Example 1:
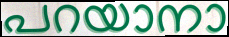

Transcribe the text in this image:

പറയാനാ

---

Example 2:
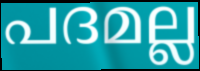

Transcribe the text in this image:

പദമല്ല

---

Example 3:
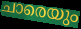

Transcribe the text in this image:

ചാരെയും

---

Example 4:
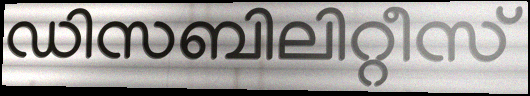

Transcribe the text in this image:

ഡിസബിലിറ്റീസ്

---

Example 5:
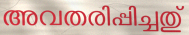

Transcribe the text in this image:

അവതരിപ്പിച്ചതു്